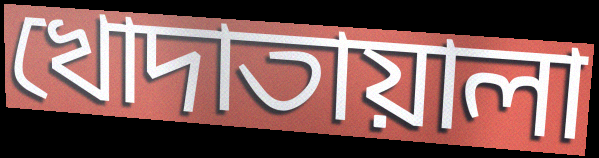
খোদাতায়ালা